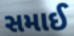
સમાઈ